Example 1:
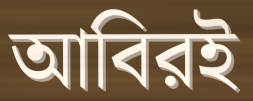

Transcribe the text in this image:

আবিরই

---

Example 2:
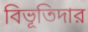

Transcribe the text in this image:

বিভূতিদার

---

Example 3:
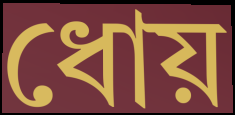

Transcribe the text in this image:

ধোয়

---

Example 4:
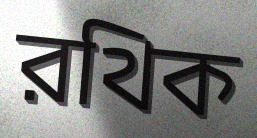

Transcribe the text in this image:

রথিক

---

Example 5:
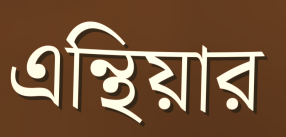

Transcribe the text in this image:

এন্থিয়ার